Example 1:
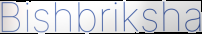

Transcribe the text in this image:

Bishbriksha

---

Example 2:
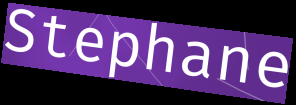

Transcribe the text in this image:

Stephane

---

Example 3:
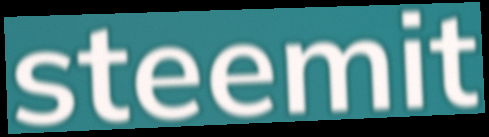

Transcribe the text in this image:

steemit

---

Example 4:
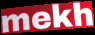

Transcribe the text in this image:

mekh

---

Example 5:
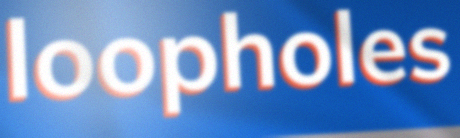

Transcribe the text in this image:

loopholes